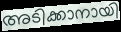
അടിക്കാനായി